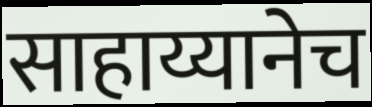
साहाय्यानेच